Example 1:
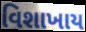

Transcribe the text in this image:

વિશાખાય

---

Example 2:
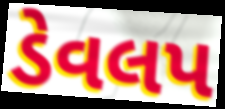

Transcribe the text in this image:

ડેવલપ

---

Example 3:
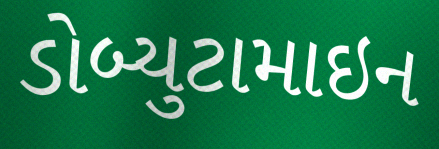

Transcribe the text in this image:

ડોબ્યુટામાઇન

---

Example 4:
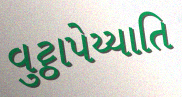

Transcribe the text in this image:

વુટ્ઠાપેય્યાતિ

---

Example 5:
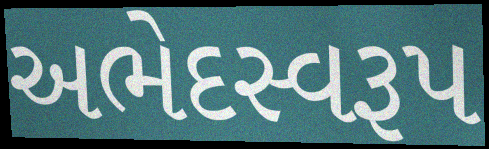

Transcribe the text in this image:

અભેદસ્વરૂપ